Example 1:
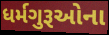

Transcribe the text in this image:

ધર્મગુરૂઓના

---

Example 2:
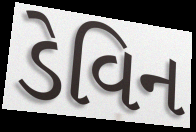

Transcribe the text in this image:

ડેવિન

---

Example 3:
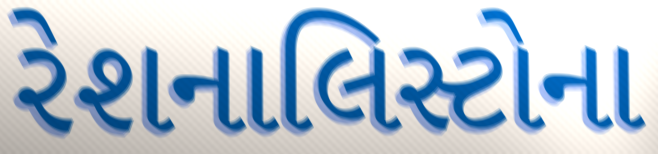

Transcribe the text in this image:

રેશનાલિસ્ટોના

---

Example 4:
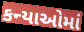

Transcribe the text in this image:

કન્યાઓમાં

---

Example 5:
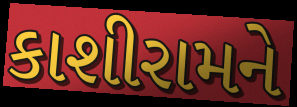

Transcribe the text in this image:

કાશીરામને